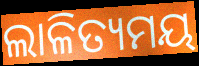
ଲାଳିତ୍ୟମୟ